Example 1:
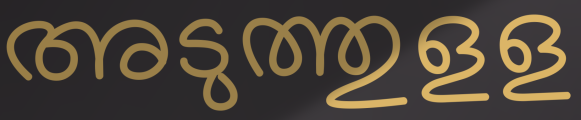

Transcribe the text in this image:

അടുത്തുളള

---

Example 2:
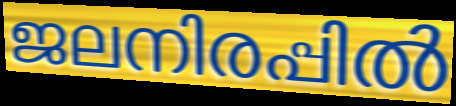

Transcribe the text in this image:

ജലനിരപ്പിൽ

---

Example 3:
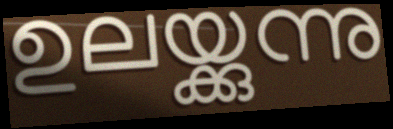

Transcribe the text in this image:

ഉലയ്ക്കുന്നു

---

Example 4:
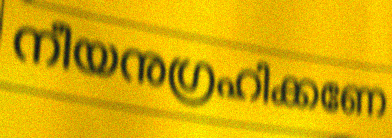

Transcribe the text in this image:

നീയനുഗ്രഹിക്കണേ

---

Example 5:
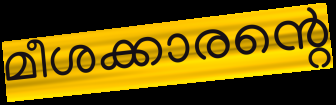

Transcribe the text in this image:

മീശക്കാരന്റെ